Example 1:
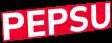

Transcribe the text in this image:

PEPSU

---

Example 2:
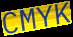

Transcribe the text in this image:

CMYK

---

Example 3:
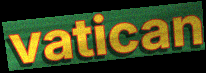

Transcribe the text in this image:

vatican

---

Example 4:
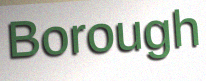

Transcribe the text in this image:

Borough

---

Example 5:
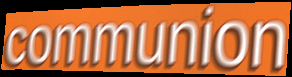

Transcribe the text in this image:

communion